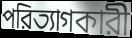
পরিত্যাগকারী